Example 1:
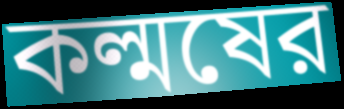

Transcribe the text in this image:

কল্মষের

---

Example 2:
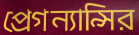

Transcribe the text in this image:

প্রেগন্যান্সির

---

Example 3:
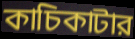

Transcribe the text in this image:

কাচিকাটার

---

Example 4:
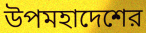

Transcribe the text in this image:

উপমহাদেশের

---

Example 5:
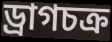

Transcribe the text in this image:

ড্রাগচক্র